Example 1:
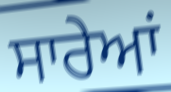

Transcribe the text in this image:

ਸਾਰੇਆਂ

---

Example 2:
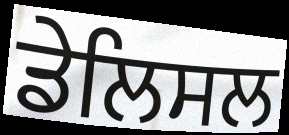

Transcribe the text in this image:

ਡੇਲਿਸਲ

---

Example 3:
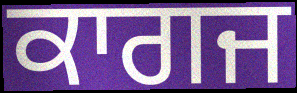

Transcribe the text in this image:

ਕਾਗਜ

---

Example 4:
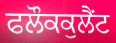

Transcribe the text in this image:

ਫਲੌਕਕੁਲੈਂਟ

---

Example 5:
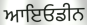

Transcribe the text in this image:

ਆਇਓਡੀਨ